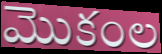
మొకంల